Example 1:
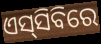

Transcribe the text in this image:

ଏସ୍‌ସିବିରେ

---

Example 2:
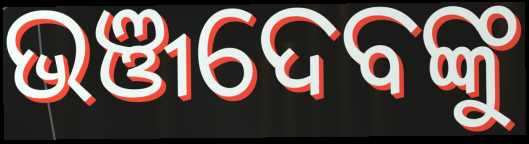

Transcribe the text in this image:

ଭଞ୍ଜଦେବଙ୍କୁ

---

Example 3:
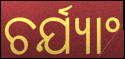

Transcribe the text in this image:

ଚର୍ଯ୍ୟାଂ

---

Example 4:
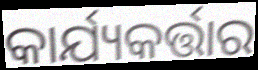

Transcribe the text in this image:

କାର୍ଯ୍ୟକର୍ତ୍ତାର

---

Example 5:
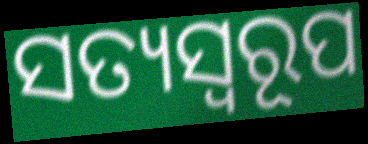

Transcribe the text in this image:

ସତ୍ୟସ୍ୱରୂପ